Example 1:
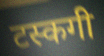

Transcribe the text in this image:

टस्कगी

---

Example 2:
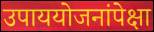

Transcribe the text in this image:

उपाययोजनांपेक्षा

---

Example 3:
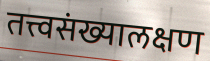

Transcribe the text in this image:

तत्त्वसंख्यालक्षण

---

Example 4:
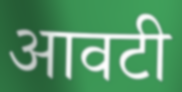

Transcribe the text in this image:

आवटी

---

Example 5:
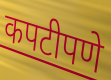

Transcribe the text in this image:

कपटीपणे